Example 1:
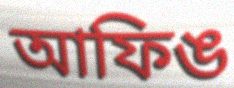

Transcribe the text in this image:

আফিঙ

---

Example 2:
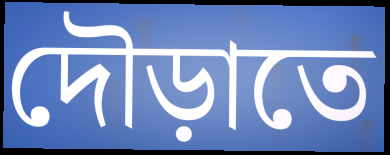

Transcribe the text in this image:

দৌড়াতে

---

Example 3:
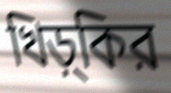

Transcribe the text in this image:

খিড়্‌কির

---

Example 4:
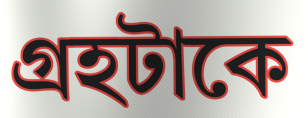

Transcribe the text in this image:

গ্রহটাকে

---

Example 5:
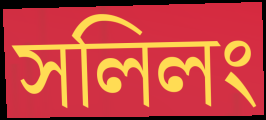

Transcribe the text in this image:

সলিলং